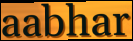
aabhar